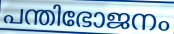
പന്തിഭോജനം